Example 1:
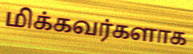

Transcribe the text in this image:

மிக்கவர்களாக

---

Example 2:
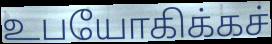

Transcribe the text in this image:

உபயோகிக்கச்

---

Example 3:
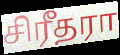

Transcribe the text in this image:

சிரீதரா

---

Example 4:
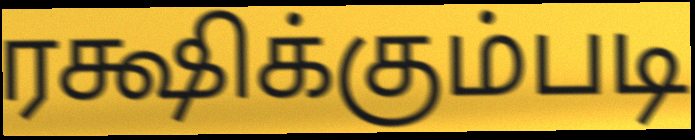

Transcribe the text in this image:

ரக்ஷிக்கும்படி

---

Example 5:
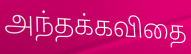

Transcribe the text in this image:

அந்தக்கவிதை